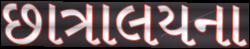
છાત્રાલયના